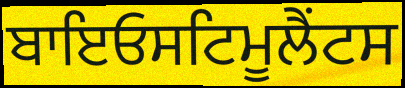
ਬਾਇਓਸਟਿਮੂਲੈਂਟਸ